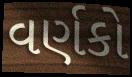
વર્ણકો